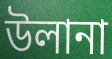
উলানা